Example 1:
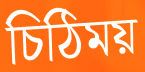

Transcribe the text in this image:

চিঠিময়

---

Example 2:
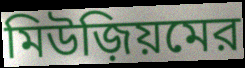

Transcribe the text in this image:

মিউজ়িয়মের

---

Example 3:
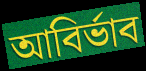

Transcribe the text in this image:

আবির্ভাব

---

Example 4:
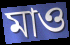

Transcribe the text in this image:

মাও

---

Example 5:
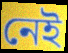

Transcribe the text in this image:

নেই